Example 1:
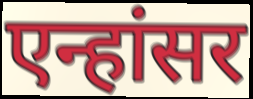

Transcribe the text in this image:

एन्हांसर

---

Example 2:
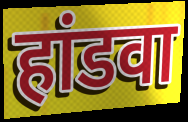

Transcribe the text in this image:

हांडवा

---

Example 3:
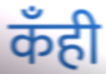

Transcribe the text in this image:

कँही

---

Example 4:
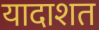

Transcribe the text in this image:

यादाशत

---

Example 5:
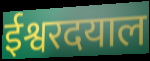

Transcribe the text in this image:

ईश्वरदयाल